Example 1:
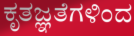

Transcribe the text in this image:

ಕೃತಜ್ಞತೆಗಳಿಂದ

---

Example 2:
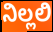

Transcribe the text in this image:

ನಿಲ್ಲಲಿ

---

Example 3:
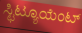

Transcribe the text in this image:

ಸ್ಟಿಟ್ಯೂಯೆಂಟ್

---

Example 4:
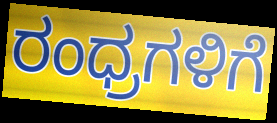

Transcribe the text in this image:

ರಂಧ್ರಗಳಿಗೆ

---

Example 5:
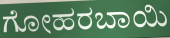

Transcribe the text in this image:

ಗೋಹರಬಾಯಿ